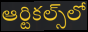
ఆర్టికల్స్‌లో